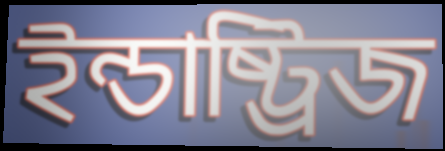
ইন্ডাষ্ট্রিজ